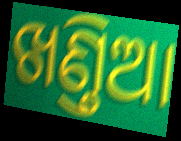
ଖଣ୍ତିଆ